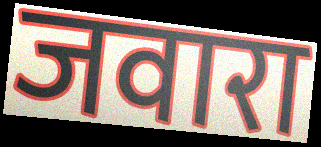
जवारा